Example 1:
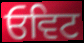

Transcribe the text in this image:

ਓਵਿਟ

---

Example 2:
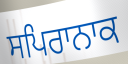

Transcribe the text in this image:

ਸਪਿਰਾਨਾਕ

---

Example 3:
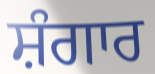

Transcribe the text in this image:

ਸ਼ੰਗਾਰ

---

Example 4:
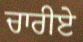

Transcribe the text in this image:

ਚਾਰੀਏ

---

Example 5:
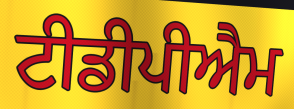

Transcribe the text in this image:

ਟੀਡੀਪੀਐਮ